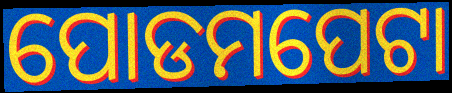
ପୋଡମପେଟା